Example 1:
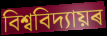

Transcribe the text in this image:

বিশ্ববিদ্যায়ৰ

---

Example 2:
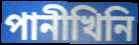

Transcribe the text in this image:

পানীখিনি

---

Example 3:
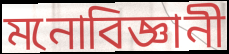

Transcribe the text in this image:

মনোবিজ্ঞানী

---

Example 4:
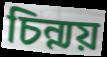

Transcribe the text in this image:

চিন্ময়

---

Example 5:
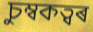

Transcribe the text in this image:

চুম্বকত্বৰ